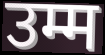
उम्म